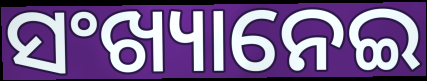
ସଂଖ୍ୟାନେଇ